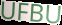
UFBU